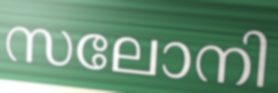
സലോനി